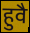
हुवै